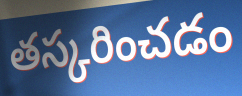
తస్కరించడం